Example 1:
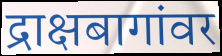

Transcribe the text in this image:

द्राक्षबागांवर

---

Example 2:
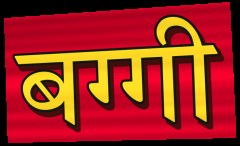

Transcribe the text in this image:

बग्गी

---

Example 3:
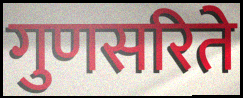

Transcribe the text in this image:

गुणसरिते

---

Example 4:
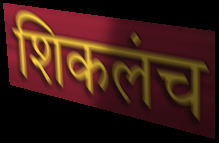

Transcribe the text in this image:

शिकलंच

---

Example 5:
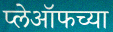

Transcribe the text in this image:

प्लेऑफच्या